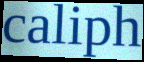
caliph